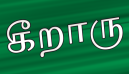
கீறாரு